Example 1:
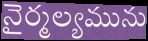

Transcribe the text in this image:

నైర్మల్యమును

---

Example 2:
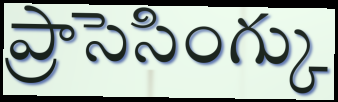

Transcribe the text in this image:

ప్రాసెసింగ్కు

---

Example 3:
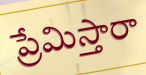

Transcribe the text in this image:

ప్రేమిస్తారా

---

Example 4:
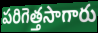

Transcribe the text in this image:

పరిగెత్తసాగారు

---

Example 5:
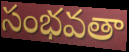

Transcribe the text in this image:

సంభవతా